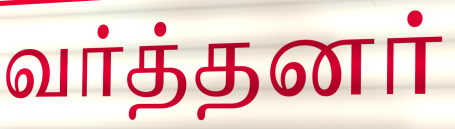
வர்த்தனர்